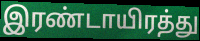
இரண்டாயிரத்து